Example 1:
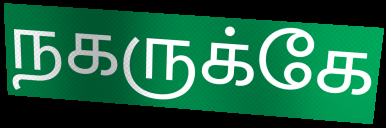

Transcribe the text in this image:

நகருக்கே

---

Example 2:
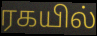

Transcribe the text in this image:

ரகயில்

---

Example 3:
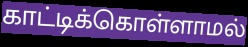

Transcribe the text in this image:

காட்டிக்கொள்ளாமல்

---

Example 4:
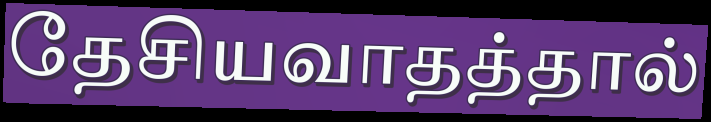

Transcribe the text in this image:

தேசியவாதத்தால்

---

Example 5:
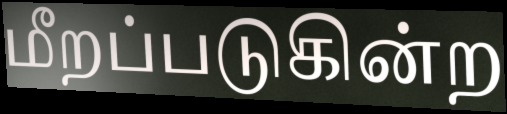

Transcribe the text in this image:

மீறப்படுகின்ற